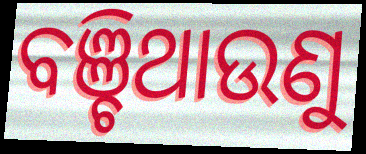
ବଞ୍ଚିଥାଉଣୁ